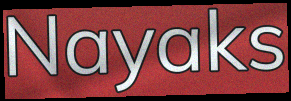
Nayaks